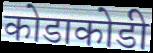
कोडाकोडी